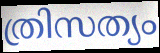
ത്രിസത്യം